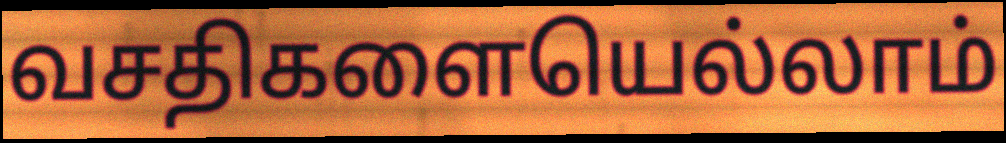
வசதிகளையெல்லாம்